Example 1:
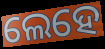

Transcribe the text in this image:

ଲେହେ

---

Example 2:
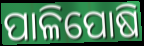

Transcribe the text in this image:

ପାଳିପୋଷି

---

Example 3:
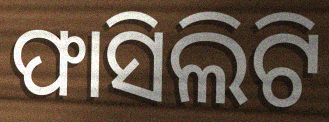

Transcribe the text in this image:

ଫାସିଲିଟି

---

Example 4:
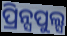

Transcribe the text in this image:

ପ୍ରିନ୍ସପୁଲ୍ସ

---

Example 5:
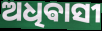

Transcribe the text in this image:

ଅଧିଵାସୀ